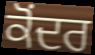
ਕੋਂਦਰ